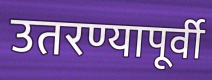
उतरण्यापूर्वी